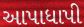
આપાધાપી